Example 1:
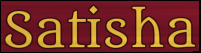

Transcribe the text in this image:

Satisha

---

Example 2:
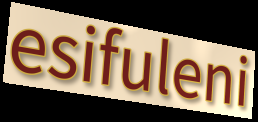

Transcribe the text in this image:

esifuleni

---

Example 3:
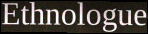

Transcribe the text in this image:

Ethnologue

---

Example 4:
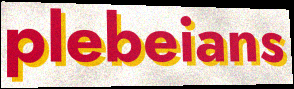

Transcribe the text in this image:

plebeians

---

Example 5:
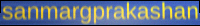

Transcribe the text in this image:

sanmargprakashan